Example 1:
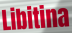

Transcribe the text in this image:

Libitina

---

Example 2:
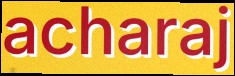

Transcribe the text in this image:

acharaj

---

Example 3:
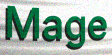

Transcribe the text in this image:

Mage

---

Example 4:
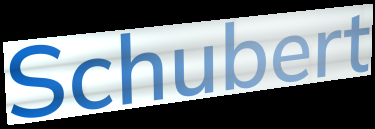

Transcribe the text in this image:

Schubert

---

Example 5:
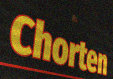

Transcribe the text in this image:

Chorten